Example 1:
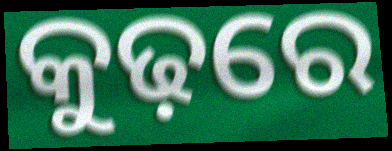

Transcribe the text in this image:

କୁଢ଼ରେ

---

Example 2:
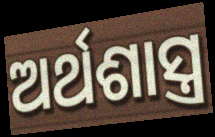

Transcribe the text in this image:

ଅର୍ଥଶାସ୍ତ୍ର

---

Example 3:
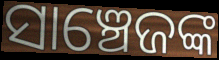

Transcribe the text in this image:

ସାଞ୍ଚେଜଙ୍କ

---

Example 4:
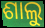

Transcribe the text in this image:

ଶାଲୁ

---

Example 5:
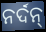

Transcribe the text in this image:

ନର୍ଦନ୍